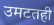
उमटतही